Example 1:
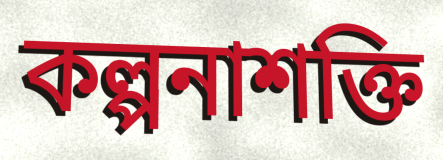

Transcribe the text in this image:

কল্পনাশক্তি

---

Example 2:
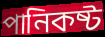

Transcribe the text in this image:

পানিকষ্ট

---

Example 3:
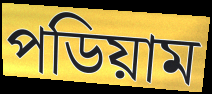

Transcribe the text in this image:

পডিয়াম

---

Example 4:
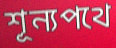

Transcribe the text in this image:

শূন্যপথে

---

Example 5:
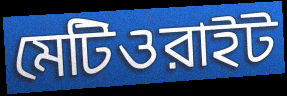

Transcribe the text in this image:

মেটিওরাইট